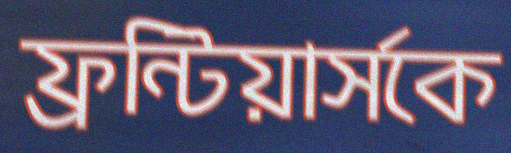
ফ্রন্টিয়ার্সকে